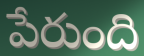
పేరుంది